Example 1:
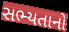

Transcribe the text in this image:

સભ્યતાનો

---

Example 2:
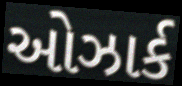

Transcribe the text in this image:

ઓઝાર્ક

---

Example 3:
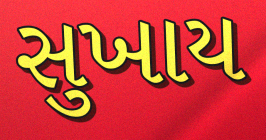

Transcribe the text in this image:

સુખાય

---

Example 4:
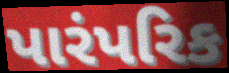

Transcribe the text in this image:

પારંપરિક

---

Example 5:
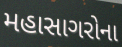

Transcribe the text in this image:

મહાસાગરોના